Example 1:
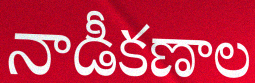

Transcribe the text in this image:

నాడీకణాల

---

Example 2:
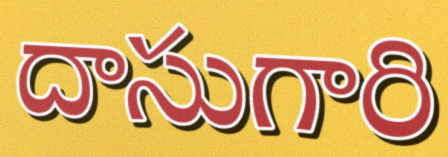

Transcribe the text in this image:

దాసుగారి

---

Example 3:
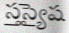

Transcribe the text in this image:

స్తస్యైష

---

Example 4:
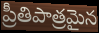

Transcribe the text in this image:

ప్రీతిపాత్రమైన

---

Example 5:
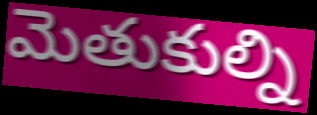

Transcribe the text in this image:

మెతుకుల్ని